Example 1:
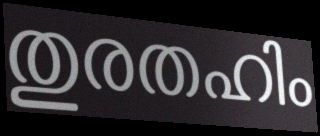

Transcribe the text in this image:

തുരതഹിം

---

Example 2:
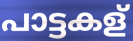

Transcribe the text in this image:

പാട്ടകള്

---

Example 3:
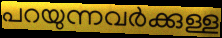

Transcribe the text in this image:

പറയുന്നവർക്കുള്ള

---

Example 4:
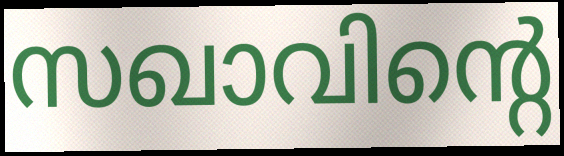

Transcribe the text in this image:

സഖാവിന്റെ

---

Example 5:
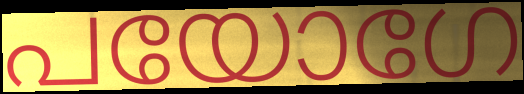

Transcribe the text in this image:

പയോഗേ